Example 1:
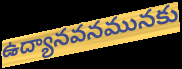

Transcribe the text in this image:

ఉద్యానవనమునకు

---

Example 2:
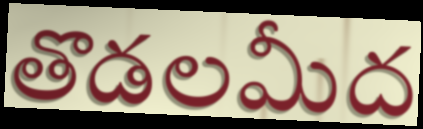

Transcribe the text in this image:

తొడలమీద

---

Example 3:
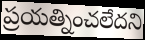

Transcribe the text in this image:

ప్రయత్నించలేదని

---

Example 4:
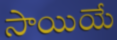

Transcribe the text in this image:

సాయియే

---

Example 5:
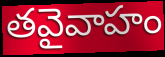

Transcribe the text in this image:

తవైవాహం